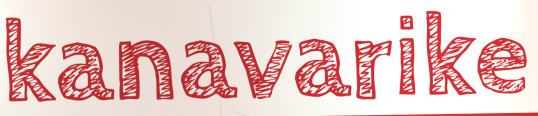
kanavarike